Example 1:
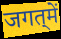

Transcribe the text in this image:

जगत्‌में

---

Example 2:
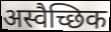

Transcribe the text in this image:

अस्वैच्छिक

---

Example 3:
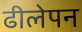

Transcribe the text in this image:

ढीलेपन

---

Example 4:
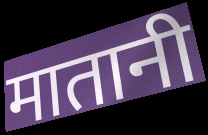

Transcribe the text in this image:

मातानी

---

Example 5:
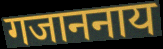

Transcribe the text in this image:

गजाननाय